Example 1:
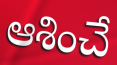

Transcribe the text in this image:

ఆశించే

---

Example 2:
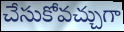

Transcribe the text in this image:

చేసుకోవచ్చుగా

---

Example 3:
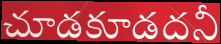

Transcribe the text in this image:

చూడకూడదనీ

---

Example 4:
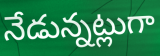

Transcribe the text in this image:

నేడున్నట్లుగా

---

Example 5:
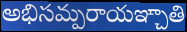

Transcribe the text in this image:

అభిసమ్పరాయఞ్చాతి